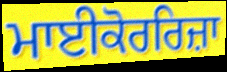
ਮਾਈਕੋਰਰਿਜ਼ਾ